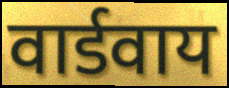
वार्डवाय